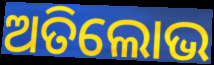
ଅତିଲୋଭ